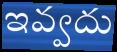
ఇవ్వదు